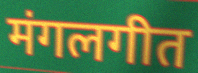
मंगलगीत